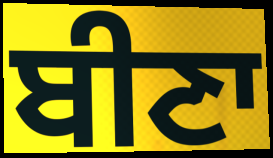
ਬੀਣਾ